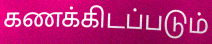
கணக்கிடப்படும்